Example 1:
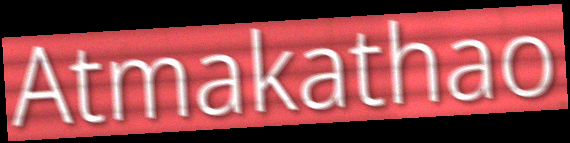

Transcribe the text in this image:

Atmakathao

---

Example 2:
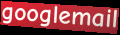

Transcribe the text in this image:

googlemail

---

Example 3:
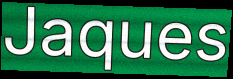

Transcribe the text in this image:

Jaques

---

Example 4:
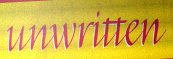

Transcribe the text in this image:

unwritten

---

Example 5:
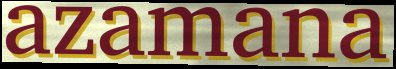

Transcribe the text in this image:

azamana